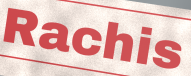
Rachis